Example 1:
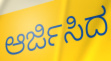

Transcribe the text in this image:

ಆರ್ಜಿಸಿದ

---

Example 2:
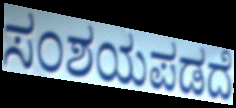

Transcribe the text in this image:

ಸಂಶಯಪಡದೆ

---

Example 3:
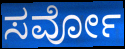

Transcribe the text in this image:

ಸರ್ವೋ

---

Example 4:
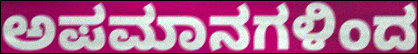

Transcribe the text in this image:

ಅಪಮಾನಗಳಿಂದ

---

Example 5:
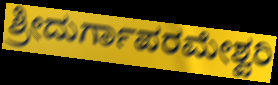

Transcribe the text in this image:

ಶ್ರೀದುರ್ಗಾಪರಮೇಶ್ವರಿ